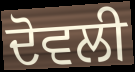
ਦੋਵਲੀ